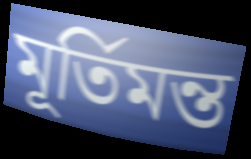
মূর্তিমন্ত